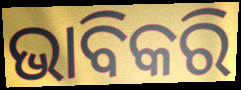
ଭାବିକରି